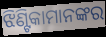
ଝିଣ୍ଟିକାମାନଙ୍କର